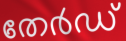
തേർഡ്